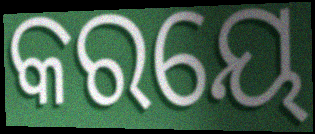
କରୟେ